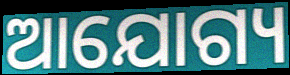
ଆଯୋଗ୍ୟ